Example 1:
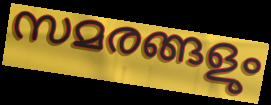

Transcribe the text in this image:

സമരങ്ങളും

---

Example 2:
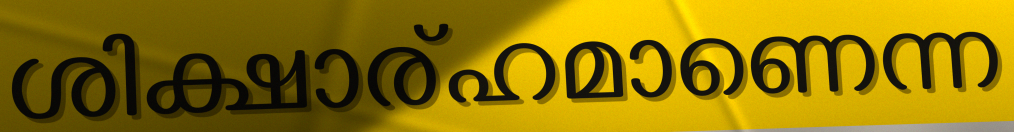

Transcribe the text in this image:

ശിക്ഷാര്ഹമാണെന്ന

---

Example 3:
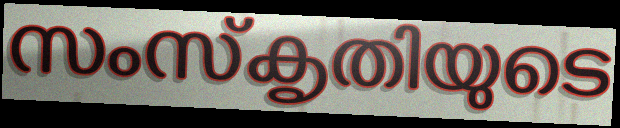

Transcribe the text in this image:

സംസ്‌കൃതിയുടെ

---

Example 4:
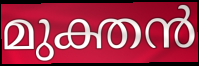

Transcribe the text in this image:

മുക്തൻ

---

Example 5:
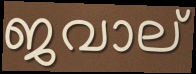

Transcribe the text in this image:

ജവാല്